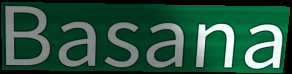
Basana